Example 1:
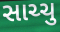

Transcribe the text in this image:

સાચ્ચુ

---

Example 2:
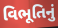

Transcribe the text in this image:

વિભૂતિનું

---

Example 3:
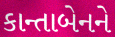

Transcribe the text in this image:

કાન્તાબેનને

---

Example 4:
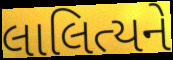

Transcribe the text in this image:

લાલિત્યને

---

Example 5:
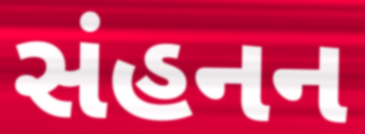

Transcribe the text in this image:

સંહનન